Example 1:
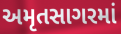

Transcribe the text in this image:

અમૃતસાગરમાં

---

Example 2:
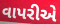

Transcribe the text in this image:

વાપરીએ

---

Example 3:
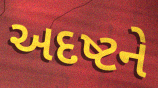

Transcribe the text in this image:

અદષ્ટને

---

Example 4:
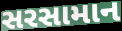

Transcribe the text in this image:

સરસામાન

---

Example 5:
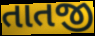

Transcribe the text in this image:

તાતજી